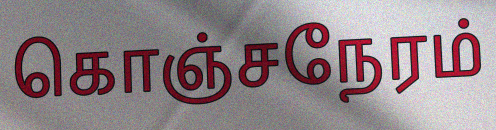
கொஞ்சநேரம்